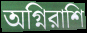
অগ্নিরাশি